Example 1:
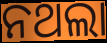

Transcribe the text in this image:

ନଥଲା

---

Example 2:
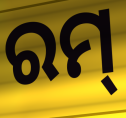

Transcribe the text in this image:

ରମ୍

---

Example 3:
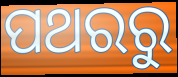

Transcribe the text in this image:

ପଥରରୁ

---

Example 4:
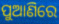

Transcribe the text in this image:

ପୁଆଣିରେ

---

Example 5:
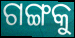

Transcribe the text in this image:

ଗଙ୍ଗକୁ